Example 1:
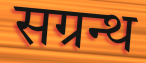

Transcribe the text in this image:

सग्रन्थ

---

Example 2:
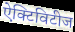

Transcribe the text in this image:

ऐक्टिविटीज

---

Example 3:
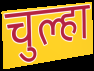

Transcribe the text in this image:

चुल्हा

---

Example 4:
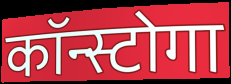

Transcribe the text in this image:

कॉन्स्टोगा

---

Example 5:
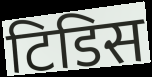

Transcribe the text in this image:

टिडिस